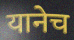
यानेच